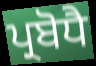
ਪ੍ਰਬੋਧੈ